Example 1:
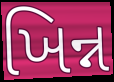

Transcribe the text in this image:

ખિન્ન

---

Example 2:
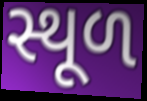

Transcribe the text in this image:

સ્થૂળ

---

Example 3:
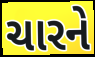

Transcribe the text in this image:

ચારને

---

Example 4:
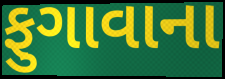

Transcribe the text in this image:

ફુગાવાના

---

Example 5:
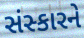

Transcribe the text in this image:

સંસ્કારને